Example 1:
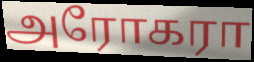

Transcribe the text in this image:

அரோகரா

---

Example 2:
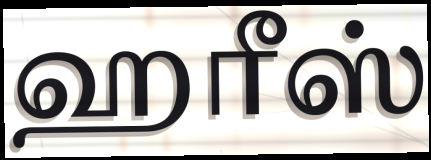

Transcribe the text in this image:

ஹரீஸ்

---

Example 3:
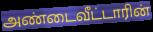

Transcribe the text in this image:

அண்டைவீட்டாரின்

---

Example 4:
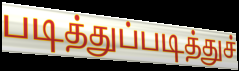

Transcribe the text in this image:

படித்துப்படித்துச்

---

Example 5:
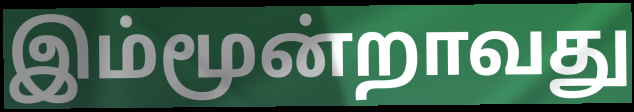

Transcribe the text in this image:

இம்மூன்றாவது